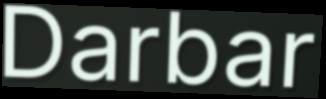
Darbar